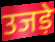
उजड़े